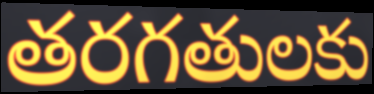
తరగతులకు